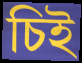
চিই